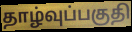
தாழ்வுப்பகுதி